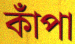
কাঁপা